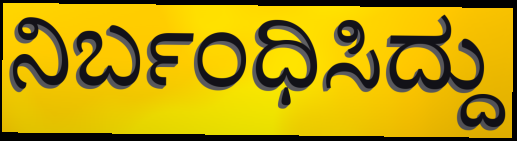
ನಿರ್ಬಂಧಿಸಿದ್ದು